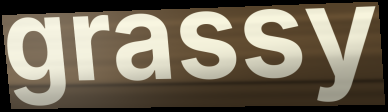
grassy